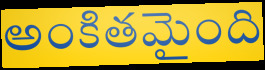
అంకితమైంది